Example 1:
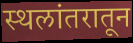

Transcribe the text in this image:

स्थलांतरातून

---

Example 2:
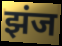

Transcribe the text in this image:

झंज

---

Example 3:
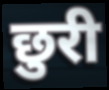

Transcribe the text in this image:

छुरी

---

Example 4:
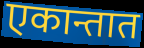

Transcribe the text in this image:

एकान्तात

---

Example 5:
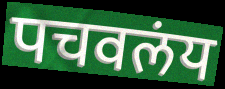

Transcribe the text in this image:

पचवलंय